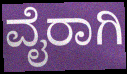
ವೈರಾಗಿ